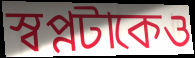
স্বপ্নটাকেও